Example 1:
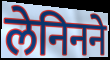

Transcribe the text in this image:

लेनिनने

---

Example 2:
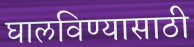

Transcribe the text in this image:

घालविण्यासाठी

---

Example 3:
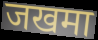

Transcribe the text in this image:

जखमा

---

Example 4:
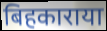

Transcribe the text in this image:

बिहकाराया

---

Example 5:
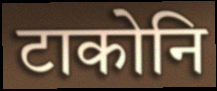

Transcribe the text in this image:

टाकोनि